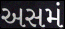
અસમં